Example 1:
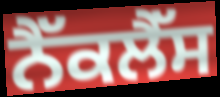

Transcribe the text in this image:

ਨੈੱਕਲੈੱਸ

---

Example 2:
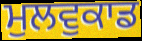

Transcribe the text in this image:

ਮੁਲਵੁਕਾਡ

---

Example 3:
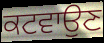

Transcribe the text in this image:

ਕਟਵਾਉਣ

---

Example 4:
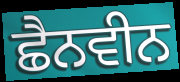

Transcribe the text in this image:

ਛੈਨਵੀਨ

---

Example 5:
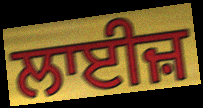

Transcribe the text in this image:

ਲਾਈਜ਼